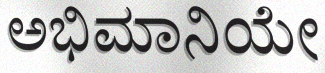
ಅಭಿಮಾನಿಯೇ